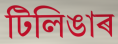
টিলিঙাৰ